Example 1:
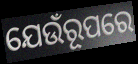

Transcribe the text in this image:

ଯେଉଁରୂପରେ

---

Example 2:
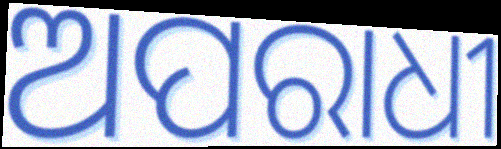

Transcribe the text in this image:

ଅପରାଧୀ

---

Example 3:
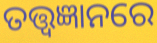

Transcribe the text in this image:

ତତ୍ତ୍ୱଜ୍ଞାନରେ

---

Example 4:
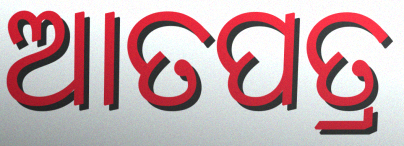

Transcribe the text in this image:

ଆତପତ୍ର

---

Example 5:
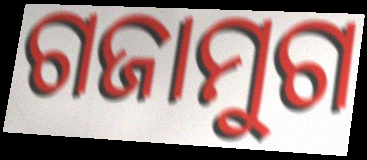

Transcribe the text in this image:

ଗଜାମୁଗ